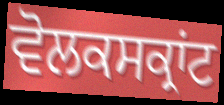
ਵੋਲਕਸਕ੍ਰਾਂਟ